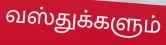
வஸ்துக்களும்